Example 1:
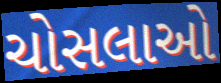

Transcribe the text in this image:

ચોસલાઓ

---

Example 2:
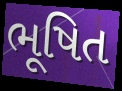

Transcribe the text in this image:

ભૂષિત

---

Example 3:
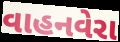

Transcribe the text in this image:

વાહનવેરા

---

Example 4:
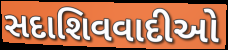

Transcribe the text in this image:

સદાશિવવાદીઓ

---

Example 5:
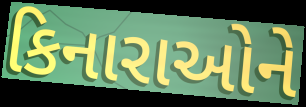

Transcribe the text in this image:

કિનારાઓને